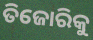
ତିଜୋରିକୁ